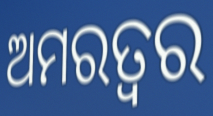
ଅମରତ୍ୱର